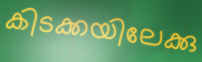
കിടക്കയിലേക്കു